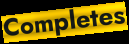
Completes